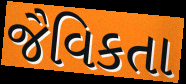
જૈવિકતા